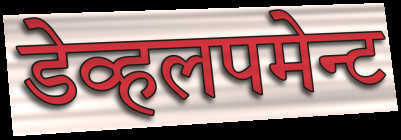
डेव्हलपमेन्ट